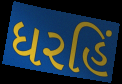
ધરહિં